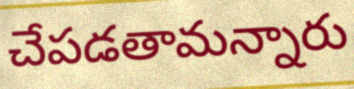
చేపడతామన్నారు